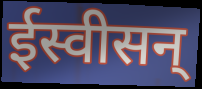
ईस्वीसन्